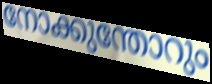
നോക്കുന്തോറും